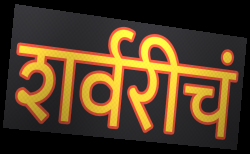
शर्वरीचं